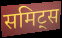
समिट्स